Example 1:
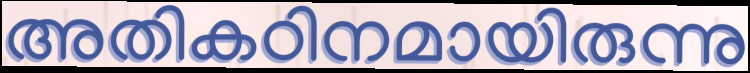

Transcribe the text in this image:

അതികഠിനമായിരുന്നു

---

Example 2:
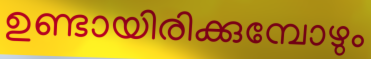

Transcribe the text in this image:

ഉണ്ടായിരിക്കുമ്പോഴും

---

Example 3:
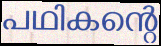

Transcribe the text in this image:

പഥികന്റെ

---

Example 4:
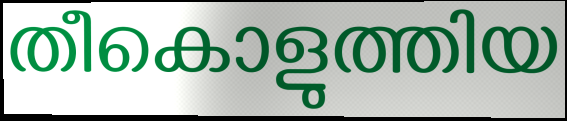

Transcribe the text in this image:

തീകൊളുത്തിയ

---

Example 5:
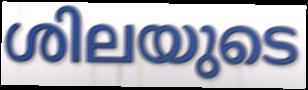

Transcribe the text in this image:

ശിലയുടെ